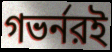
গভর্নরই